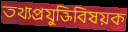
তথ্যপ্রযুক্তিবিষয়ক